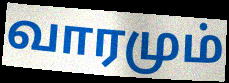
வாரமும்